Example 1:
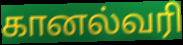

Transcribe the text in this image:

கானல்வரி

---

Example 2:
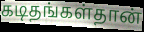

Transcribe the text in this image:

கடிதங்கள்தான்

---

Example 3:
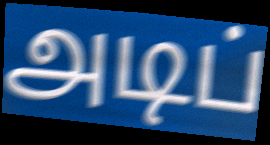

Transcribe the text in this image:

அடிப்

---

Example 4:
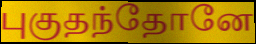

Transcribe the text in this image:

புகுதந்தோனே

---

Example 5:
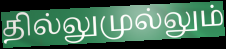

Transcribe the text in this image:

தில்லுமுல்லும்